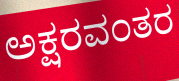
ಅಕ್ಷರವಂತರ